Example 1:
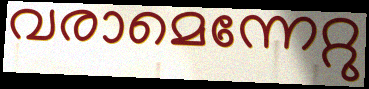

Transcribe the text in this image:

വരാമെന്നേറ്റു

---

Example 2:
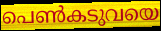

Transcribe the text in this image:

പെൺകടുവയെ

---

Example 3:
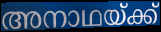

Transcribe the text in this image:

അനാഥയ്ക്ക്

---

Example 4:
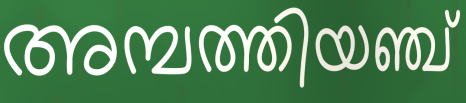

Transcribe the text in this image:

അമ്പത്തിയഞ്ച്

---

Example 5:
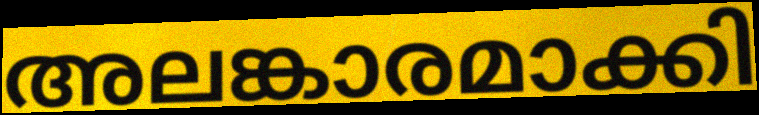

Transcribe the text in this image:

അലങ്കാരമാക്കി